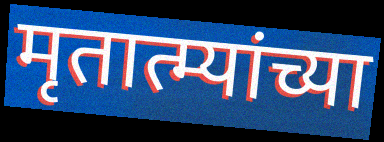
मृतात्म्यांच्या